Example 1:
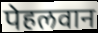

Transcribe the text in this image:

पेहलवान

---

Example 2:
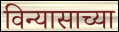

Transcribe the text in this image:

विन्यासाच्या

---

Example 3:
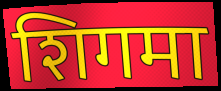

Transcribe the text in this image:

शिगमा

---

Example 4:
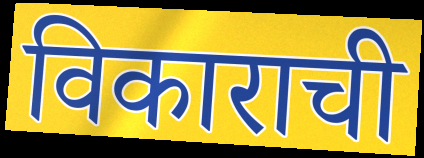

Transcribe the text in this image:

विकाराची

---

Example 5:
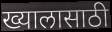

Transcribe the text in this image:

ख्यालासाठी